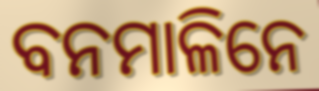
ବନମାଳିନେ